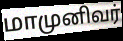
மாமுனிவர்